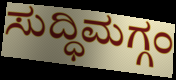
ಸುದ್ಧಿಮಗ್ಗಂ